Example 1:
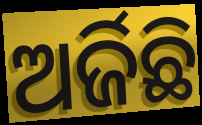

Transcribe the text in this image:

ଅର୍ଜିଛି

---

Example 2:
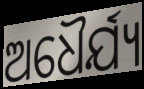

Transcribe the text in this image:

ଅଧୈର୍ଯ୍ୟ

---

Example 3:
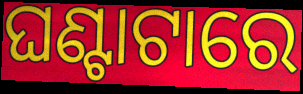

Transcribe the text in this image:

ଘଣ୍ଟାଟାରେ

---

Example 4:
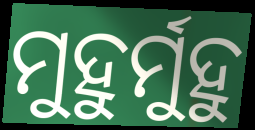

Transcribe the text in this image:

ମୁହୁର୍ମୁହୁ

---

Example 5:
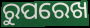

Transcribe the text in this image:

ରୁପରେଖ